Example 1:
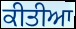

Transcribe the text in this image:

ਕੀਤੀਆ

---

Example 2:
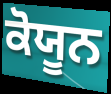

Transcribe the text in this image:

ਕੋਯੂਨ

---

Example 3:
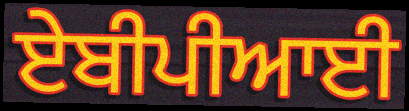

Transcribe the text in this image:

ਏਬੀਪੀਆਈ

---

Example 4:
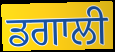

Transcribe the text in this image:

ਡਗਾਲੀ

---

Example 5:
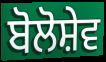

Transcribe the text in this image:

ਬੋਲੋਸ਼ੇਵ